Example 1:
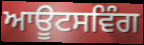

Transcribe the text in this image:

ਆਊਟਸਵਿੰਗ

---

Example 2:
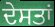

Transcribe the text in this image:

ਦੇਸਤਾਂ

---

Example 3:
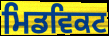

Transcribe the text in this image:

ਮਿਡਵਿਕਟ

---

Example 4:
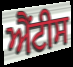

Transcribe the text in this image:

ਐਂਟੀਸ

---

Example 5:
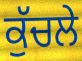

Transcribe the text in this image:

ਕੁੱਚਲੇ